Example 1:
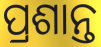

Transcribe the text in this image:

ପ୍ରଶାନ୍ତ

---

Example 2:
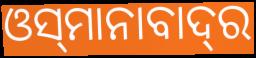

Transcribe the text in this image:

ଓସ୍‌ମାନାବାଦ୍‌ର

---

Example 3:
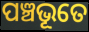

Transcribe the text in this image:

ପଞ୍ଚଭୂତେ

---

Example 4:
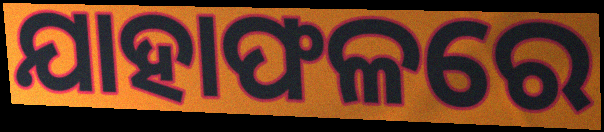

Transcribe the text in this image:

ଯାହାଫଳରେ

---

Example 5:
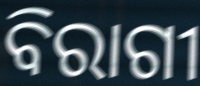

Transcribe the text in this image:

ବିରାଗୀ